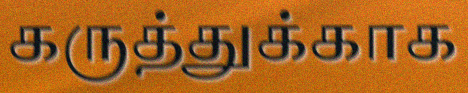
கருத்துக்காக